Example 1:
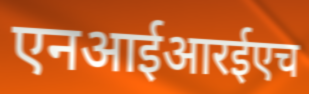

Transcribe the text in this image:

एनआईआरईएच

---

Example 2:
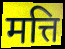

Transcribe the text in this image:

मत्ति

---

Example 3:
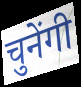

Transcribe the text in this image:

चुनेंगी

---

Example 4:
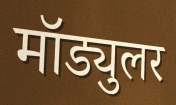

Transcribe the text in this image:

मॉड्युलर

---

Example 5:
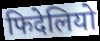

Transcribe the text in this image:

फिदेलियो